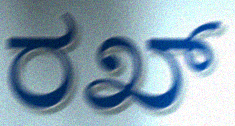
ರಖ್